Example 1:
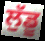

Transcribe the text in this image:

ਲੁੱਡੂ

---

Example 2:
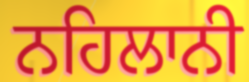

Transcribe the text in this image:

ਨਹਿਲਾਨੀ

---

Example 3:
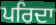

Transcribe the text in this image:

ਪਰਿਦਾ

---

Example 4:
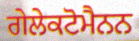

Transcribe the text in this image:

ਗੇਲੇਕਟੋਮੈਨਨ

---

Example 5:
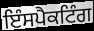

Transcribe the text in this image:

ਇੰਸਪੈਕਟਿੰਗ